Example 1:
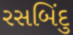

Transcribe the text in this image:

રસબિંદુ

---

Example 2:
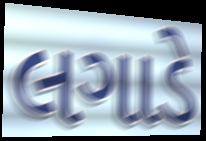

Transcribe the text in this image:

લગાડે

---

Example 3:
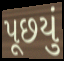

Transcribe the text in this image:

પૂછયું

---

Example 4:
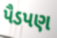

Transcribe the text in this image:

પૈડપણ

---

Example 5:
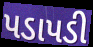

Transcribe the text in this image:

પડાપડી